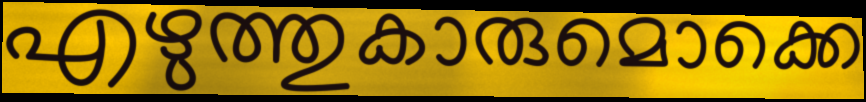
എഴുത്തുകാരുമൊക്കെ